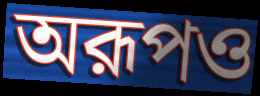
অরূপও